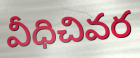
వీధిచివర